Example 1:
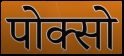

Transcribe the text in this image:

पोक्सो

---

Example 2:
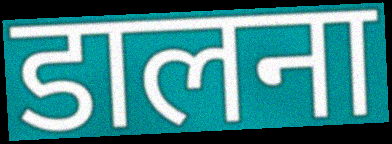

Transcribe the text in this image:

डालना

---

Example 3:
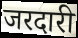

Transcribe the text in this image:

जरदारी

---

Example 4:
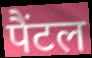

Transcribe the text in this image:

पैंटल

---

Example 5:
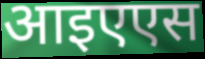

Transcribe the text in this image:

आइएएस